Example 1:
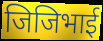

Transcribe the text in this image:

जिजिभाई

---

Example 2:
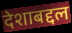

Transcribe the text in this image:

देशाबद्दल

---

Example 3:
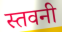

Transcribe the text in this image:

स्तवनी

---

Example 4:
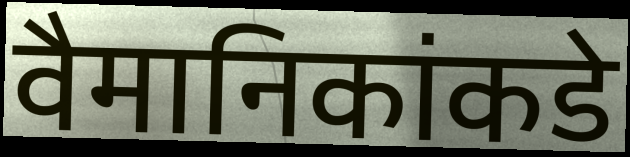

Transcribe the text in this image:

वैमानिकांकडे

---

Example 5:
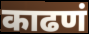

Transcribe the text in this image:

काढणं